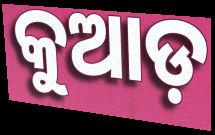
କୁଆଡ଼